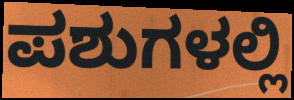
ಪಶುಗಳಲ್ಲಿ